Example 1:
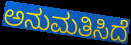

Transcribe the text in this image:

ಅನುಮತಿಸಿದೆ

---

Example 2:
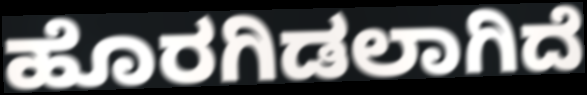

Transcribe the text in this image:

ಹೊರಗಿಡಲಾಗಿದೆ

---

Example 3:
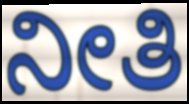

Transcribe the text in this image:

ನೀತಿ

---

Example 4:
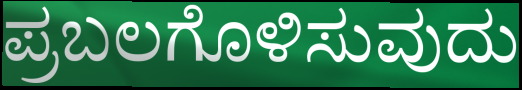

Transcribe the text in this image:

ಪ್ರಬಲಗೊಳಿಸುವುದು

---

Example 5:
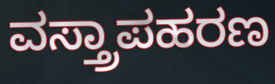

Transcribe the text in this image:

ವಸ್ತ್ರಾಪಹರಣ